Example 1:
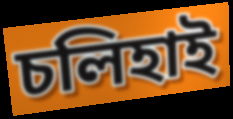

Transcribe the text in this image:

চলিহাই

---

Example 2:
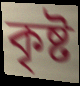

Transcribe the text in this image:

কৃষ্ট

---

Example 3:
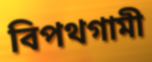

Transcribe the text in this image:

বিপথগামী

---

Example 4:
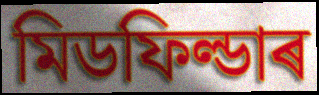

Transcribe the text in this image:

মিডফিল্ডাৰ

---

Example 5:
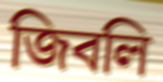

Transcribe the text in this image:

জিবলি